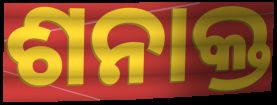
ଶନାକ୍ତ